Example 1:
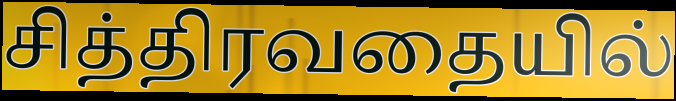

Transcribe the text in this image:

சித்திரவதையில்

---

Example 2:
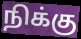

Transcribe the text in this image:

நிக்கு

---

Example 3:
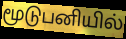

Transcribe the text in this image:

மூடுபனியில்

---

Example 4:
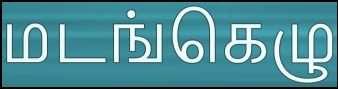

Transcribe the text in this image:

மடங்கெழு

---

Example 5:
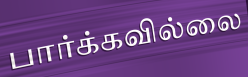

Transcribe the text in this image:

பார்க்கவில்லை